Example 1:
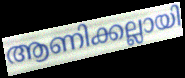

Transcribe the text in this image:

ആണിക്കല്ലായി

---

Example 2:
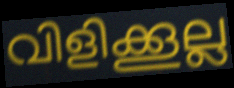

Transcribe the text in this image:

വിളിക്കൂല്ല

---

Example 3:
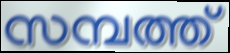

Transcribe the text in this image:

സമ്പത്ത്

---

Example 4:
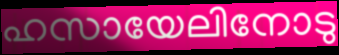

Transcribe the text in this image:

ഹസായേലിനോടു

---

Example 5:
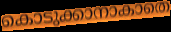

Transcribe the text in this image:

കൊടുക്കാനാകാതെ